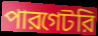
পারগেটরি